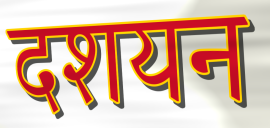
दशयन